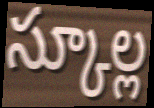
స్కూల్ల